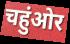
चहुंओर